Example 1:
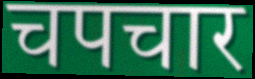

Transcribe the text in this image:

चपचार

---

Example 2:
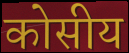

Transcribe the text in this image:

कोसीय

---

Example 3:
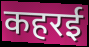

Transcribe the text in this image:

कहरई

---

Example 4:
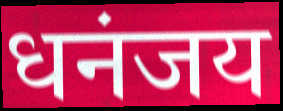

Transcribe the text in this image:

धनंजय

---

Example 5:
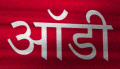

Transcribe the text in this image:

ऑडी